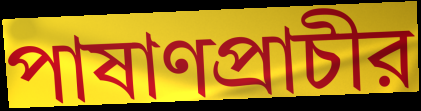
পাষাণপ্রাচীর